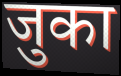
जुका